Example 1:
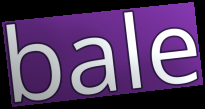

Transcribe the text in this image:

bale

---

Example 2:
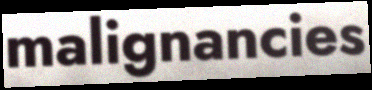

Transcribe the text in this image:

malignancies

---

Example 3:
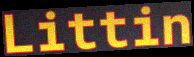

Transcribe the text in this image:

Littin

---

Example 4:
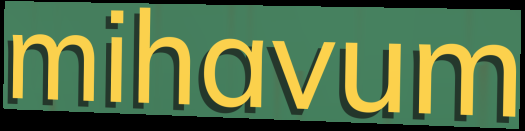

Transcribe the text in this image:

mihavum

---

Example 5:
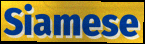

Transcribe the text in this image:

Siamese